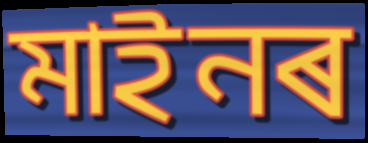
মাইনৰ